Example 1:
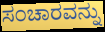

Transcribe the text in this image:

ಸಂಚಾರವನ್ನು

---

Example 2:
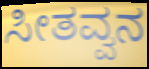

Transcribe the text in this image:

ಸೀತವ್ವನ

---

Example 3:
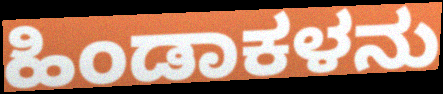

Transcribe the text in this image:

ಹಿಂಡಾಕಳನು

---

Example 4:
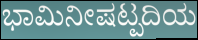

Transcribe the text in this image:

ಭಾಮಿನೀಷಟ್ಪದಿಯ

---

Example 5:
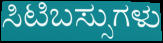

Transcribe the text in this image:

ಸಿಟಿಬಸ್ಸುಗಳು